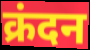
क्रंदन